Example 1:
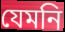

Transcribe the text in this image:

যেমনি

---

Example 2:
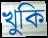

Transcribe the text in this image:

খুকি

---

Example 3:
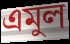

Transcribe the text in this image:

এমুল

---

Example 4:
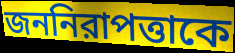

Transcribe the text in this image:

জননিরাপত্তাকে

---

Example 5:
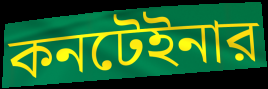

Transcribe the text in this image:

কনটেইনার